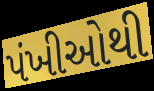
પંખીઓથી